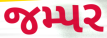
જમ્પર